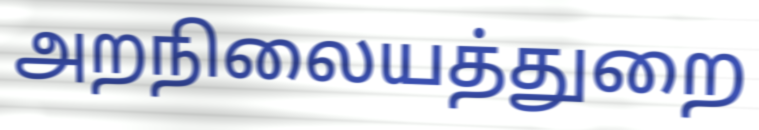
அறநிலையத்துறை